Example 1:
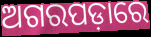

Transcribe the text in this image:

ଅଗରପଡ଼ାରେ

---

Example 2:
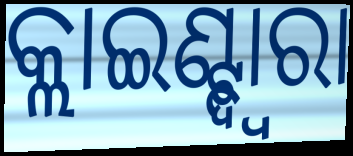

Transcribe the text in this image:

କ୍ଲାଇଣ୍ଟ୍ଦ୍ୱାରା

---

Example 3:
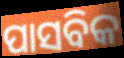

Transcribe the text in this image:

ପାସବିକ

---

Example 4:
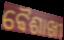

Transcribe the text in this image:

ଵୈଶାଖୀ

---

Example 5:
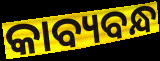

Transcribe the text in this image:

କାବ୍ୟବନ୍ଧ